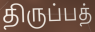
திருப்பத்